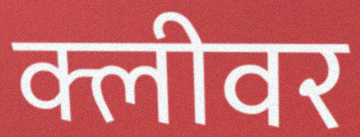
क्लीवर